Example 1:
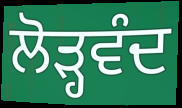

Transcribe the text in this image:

ਲੋੜ੍ਹਵੰਦ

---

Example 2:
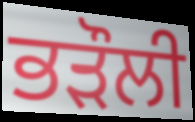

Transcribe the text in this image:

ਭੜੌਲੀ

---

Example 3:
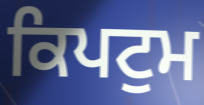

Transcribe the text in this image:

ਕਿਪਟੁਮ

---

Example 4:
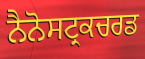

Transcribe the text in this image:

ਨੈਨੋਸਟ੍ਰਕਚਰਡ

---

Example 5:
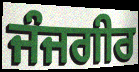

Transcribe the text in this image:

ਜੰਜਗੀਰ